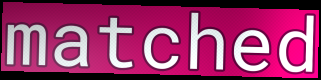
matched